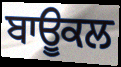
ਬਾਊਕਲ